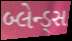
બ્લેન્ડ્સ